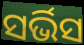
ସର୍ଭିସ